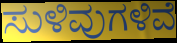
ಸುಳಿವುಗಳಿವೆ